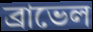
ব্রাভেল